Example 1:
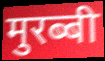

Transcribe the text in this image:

मुरब्बी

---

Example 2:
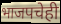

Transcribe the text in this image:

भाजपचेही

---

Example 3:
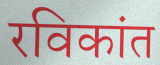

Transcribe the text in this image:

रविकांत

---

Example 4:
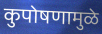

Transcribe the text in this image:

कुपोषणामुळे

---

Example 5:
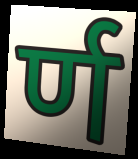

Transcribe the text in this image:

र्ण